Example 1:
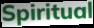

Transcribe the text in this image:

Spiritual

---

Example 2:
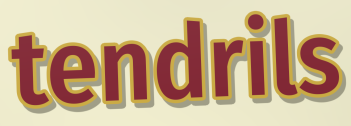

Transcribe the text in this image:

tendrils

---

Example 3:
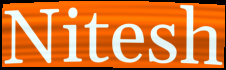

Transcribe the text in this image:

Nitesh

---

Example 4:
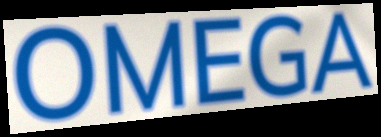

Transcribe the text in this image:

OMEGA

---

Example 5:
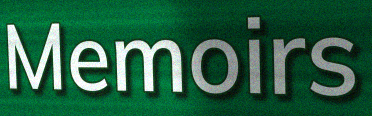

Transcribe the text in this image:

Memoirs